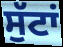
ਸੁੱਟਾਂ